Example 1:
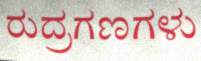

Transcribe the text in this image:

ರುದ್ರಗಣಗಳು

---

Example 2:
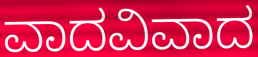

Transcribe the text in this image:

ವಾದವಿವಾದ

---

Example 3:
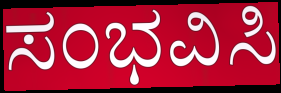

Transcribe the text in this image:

ಸಂಭವಿಸಿ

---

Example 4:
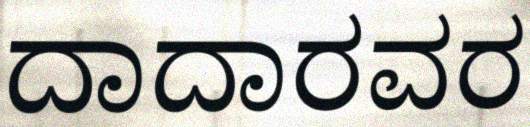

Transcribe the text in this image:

ದಾದಾರವರ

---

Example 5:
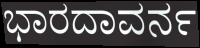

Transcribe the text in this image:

ಭಾರದಾವರ್ನ